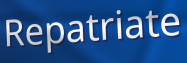
Repatriate